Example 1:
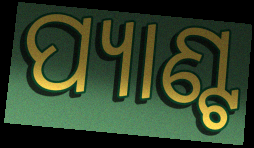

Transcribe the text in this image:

ପ୍ୟାଣ୍ଟ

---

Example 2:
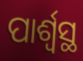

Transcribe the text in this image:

ପାର୍ଶ୍ବସ୍ଥ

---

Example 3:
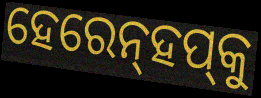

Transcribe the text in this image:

ହେରେନ୍‌ହପ୍‌କୁ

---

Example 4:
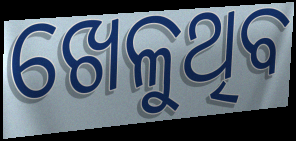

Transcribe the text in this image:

ଖେଳୁଥିବ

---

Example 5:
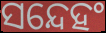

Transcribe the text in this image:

ସନ୍ଦେହଂ